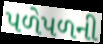
પળેપળની